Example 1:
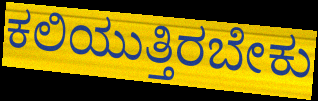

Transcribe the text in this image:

ಕಲಿಯುತ್ತಿರಬೇಕು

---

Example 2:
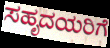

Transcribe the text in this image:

ಸಹೃದಯರಿಗೆ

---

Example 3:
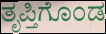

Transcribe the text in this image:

ತೃಪ್ತಿಗೊಂಡ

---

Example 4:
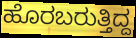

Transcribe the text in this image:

ಹೊರಬರುತ್ತಿದ್ದ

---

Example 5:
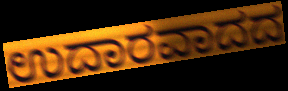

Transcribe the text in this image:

ಉದಾರವಾದದ